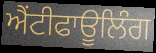
ਐਂਟੀਫਾਊਲਿੰਗ